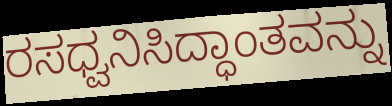
ರಸಧ್ವನಿಸಿದ್ಧಾಂತವನ್ನು